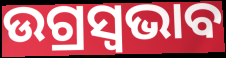
ଉଗ୍ରସ୍ୱଭାବ